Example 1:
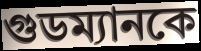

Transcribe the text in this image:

গুডম্যানকে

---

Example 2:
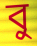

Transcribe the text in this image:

বু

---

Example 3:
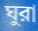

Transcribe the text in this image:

ঘুরা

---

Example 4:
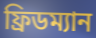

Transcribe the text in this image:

ফ্রিডম্যান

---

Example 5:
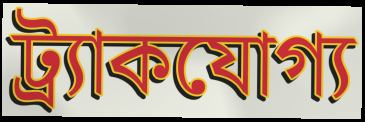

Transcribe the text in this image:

ট্র্যাকযোগ্য